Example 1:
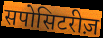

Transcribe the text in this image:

सपोसिटरीज़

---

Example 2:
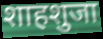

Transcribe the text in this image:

शाहशुजा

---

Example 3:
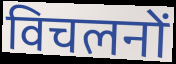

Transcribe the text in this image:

विचलनों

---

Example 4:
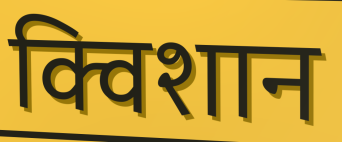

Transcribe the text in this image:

क्विशान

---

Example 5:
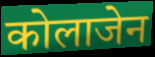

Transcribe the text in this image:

कोलाजेन